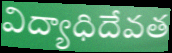
విద్యాధిదేవత